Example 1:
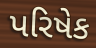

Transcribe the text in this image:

પરિષેક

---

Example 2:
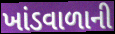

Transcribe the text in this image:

ખાંડવાળાની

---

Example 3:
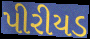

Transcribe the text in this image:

પીરીયડ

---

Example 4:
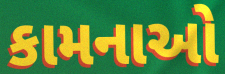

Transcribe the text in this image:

કામનાઓ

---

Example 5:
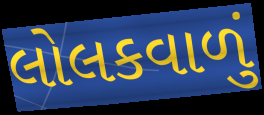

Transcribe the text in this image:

લોલકવાળું